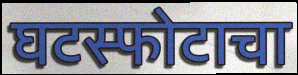
घटस्फोटाचा